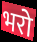
भरो